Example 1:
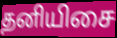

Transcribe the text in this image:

தனியிசை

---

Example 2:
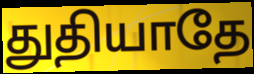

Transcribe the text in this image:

துதியாதே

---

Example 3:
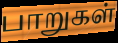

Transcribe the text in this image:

பாறுகள்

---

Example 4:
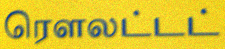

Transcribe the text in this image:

ரௌலட்டட்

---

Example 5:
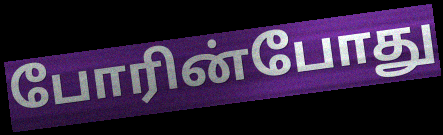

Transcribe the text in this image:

போரின்போது